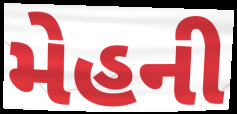
મેહની